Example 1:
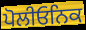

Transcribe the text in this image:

ਪੋਲੀਓਨਿਕ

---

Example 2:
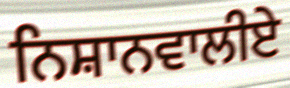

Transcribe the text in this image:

ਨਿਸ਼ਾਨਵਾਲੀਏ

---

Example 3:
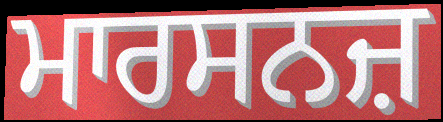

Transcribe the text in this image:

ਮਾਰਸਨਜ਼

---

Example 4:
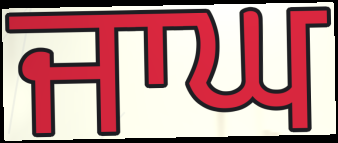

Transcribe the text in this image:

ਜਾਘ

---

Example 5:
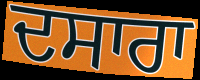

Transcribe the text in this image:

ਦਸਾਰਾ